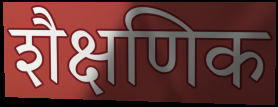
शैक्षणिक